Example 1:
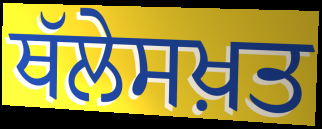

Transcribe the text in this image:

ਥੱਲੇਸਖ਼ਤ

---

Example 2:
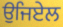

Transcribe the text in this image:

ਉਜਿਏਲ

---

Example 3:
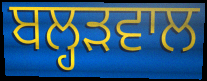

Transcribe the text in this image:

ਬਲ੍ਹੜਵਾਲ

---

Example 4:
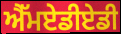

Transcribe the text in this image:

ਐੱਮਏਡੀਏਡੀ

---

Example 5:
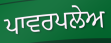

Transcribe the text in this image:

ਪਾਵਰਪਲੇਅ